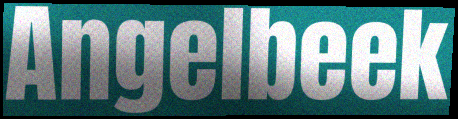
Angelbeek